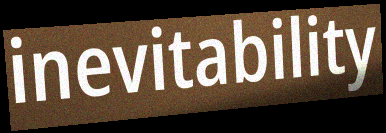
inevitability